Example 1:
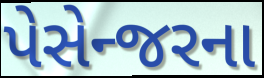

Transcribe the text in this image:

પેસેન્જરના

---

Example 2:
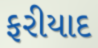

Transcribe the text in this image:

ફરીયાદ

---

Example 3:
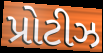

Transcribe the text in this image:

પ્રોટીઝ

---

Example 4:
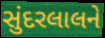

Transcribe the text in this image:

સુંદરલાલને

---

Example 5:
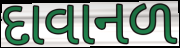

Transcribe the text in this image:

દાવાનળ